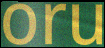
oru